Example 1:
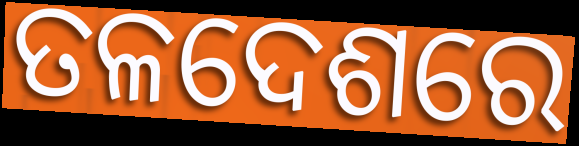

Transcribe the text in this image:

ତଳଦେଶରେ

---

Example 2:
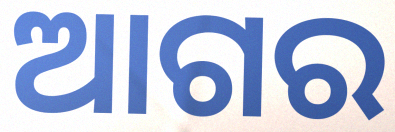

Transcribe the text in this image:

ଆଗର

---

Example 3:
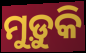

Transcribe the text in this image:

ମୁଡ଼ୁକି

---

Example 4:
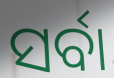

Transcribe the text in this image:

ସର୍ବା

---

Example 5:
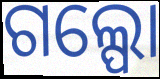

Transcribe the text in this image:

ଗଲ୍ପୋ